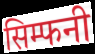
सिम्फनी